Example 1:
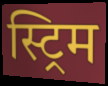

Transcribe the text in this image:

स्ट्रिम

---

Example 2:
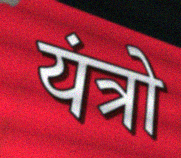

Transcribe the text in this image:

यंत्रो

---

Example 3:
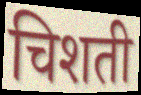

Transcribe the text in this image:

चिशती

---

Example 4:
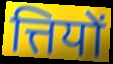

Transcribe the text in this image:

त्तियों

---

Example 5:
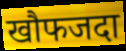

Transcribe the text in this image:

खौफजदा